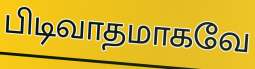
பிடிவாதமாகவே